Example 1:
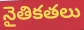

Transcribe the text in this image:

నైతికతలు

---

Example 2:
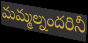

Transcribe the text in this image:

మమ్మల్నందరినీ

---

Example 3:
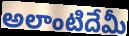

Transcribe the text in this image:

అలాంటిదేమీ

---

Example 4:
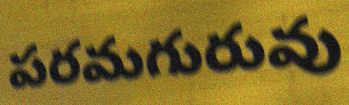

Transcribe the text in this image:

పరమగురువు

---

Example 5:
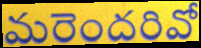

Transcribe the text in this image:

మరెందరివో